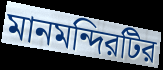
মানমন্দিরটির